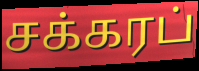
சக்கரப்